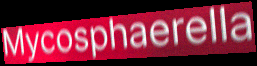
Mycosphaerella